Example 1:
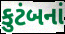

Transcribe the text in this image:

કુટંબનાં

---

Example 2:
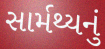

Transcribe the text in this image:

સાર્મથ્યનું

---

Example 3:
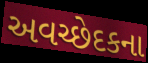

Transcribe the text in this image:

અવચ્છેદકના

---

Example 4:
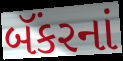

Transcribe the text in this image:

બૅંકરનાં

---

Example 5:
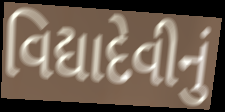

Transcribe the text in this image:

વિદ્યાદેવીનું